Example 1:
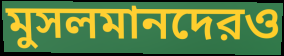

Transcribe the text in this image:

মুসলমানদেরও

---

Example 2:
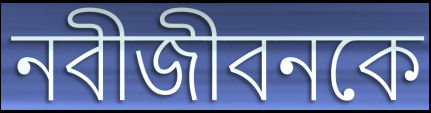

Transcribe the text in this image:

নবীজীবনকে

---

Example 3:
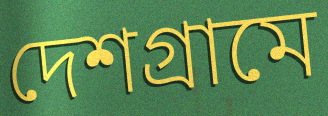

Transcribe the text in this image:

দেশগ্রামে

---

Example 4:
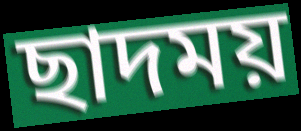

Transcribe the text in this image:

ছাদময়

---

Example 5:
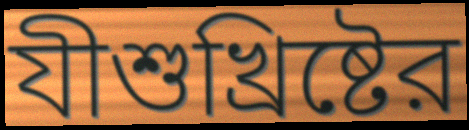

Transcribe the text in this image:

যীশুখ্রিষ্টের